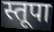
स्तूपा